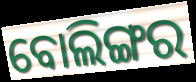
ବୋଲିଙ୍ଗର